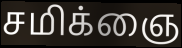
சமிக்ஞை